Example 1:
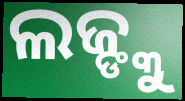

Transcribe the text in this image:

ଲଜ୍ଙ୍କୁ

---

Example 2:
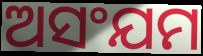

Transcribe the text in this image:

ଅସଂଯମ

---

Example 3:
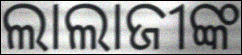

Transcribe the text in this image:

ଲାଲାଜୀଙ୍କ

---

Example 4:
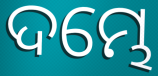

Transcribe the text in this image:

ଦମ୍ଭେ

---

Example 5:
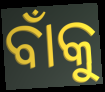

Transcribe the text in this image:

ବାଁକୁ